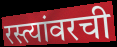
रस्त्यांवरची